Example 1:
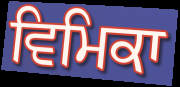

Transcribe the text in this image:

ਵਿਮਿਕਾ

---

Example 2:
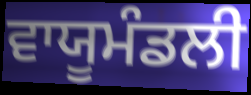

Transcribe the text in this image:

ਵਾਯੂਮੰਡਲੀ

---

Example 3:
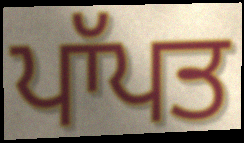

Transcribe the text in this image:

ਪਾੱਪਤ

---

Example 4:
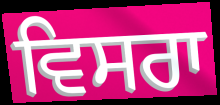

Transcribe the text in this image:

ਵਿਸਰਾ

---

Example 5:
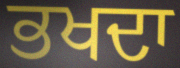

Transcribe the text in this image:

ਭਖਦਾ